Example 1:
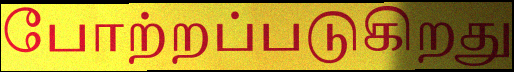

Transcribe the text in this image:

போற்றப்படுகிறது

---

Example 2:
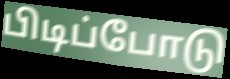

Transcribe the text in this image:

பிடிப்போடு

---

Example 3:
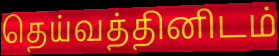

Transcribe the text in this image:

தெய்வத்தினிடம்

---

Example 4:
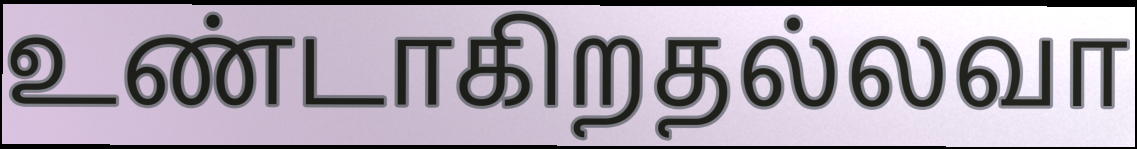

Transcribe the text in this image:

உண்டாகிறதல்லவா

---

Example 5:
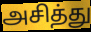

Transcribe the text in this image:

அசித்து